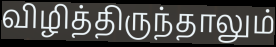
விழித்திருந்தாலும்